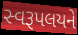
સ્વરૂપલયને